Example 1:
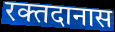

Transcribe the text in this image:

रक्तदानास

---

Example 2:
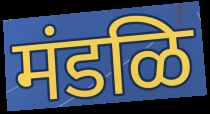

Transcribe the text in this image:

मंडळि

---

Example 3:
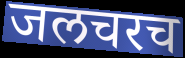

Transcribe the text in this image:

जलचरच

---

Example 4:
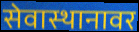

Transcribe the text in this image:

सेवास्थानावर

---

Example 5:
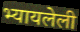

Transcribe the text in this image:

भ्यायलेली